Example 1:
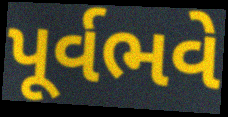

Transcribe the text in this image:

પૂર્વભવે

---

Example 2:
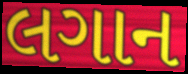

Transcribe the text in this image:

લગાન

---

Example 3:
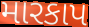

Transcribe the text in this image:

મારકાપ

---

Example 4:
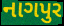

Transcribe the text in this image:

નાગપુર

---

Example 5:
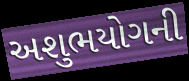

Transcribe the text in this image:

અશુભયોગની